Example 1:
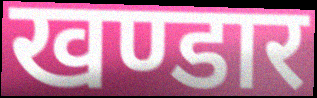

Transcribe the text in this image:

खण्डार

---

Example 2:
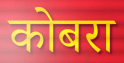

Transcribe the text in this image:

कोबरा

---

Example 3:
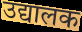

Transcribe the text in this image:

उद्यालक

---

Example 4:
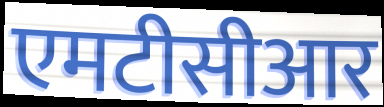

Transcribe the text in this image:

एमटीसीआर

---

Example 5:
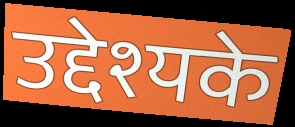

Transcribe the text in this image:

उद्देश्यके